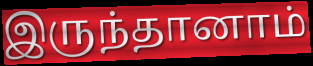
இருந்தானாம்